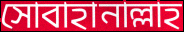
সোবাহানাল্লাহ